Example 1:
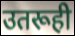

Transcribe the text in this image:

उतरूही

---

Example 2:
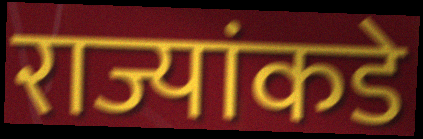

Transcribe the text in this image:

राज्यांकडे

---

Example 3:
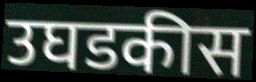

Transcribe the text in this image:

उघडकीस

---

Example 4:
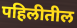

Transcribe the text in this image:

पहिलीतील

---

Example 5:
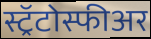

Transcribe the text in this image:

स्ट्रॅटोस्फीअर